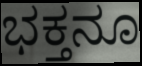
ಭಕ್ತನೂ